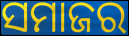
ସମାଜର